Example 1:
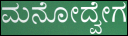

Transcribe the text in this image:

ಮನೋದ್ವೇಗ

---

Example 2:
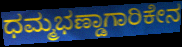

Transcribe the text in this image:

ಧಮ್ಮಭಣ್ಡಾಗಾರಿಕೇನ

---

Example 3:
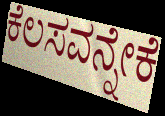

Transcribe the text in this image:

ಕೆಲಸವನ್ನೇಕೆ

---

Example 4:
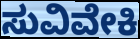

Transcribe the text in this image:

ಸುವಿವೇಕಿ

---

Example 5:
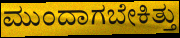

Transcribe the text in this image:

ಮುಂದಾಗಬೇಕಿತ್ತು